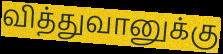
வித்துவானுக்கு